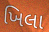
ખિલા